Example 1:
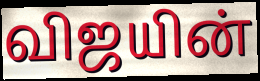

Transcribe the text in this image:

விஜயின்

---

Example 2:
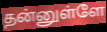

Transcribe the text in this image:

தன்னுள்ளே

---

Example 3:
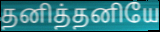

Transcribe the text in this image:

தனித்தனியே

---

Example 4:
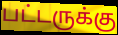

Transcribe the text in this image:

பட்டருக்கு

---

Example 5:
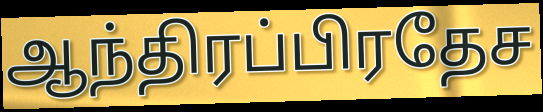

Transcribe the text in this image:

ஆந்திரப்பிரதேச